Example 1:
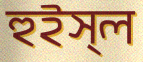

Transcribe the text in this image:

হুইস্‌ল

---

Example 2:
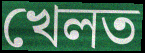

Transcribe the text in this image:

খেলত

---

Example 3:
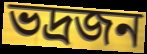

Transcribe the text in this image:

ভদ্রজন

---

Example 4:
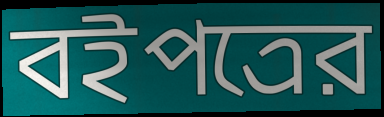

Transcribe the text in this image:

বইপত্রের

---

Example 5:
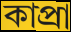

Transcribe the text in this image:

কাপ্রা